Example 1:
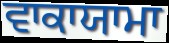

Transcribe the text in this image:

ਵਾਕਾਯਾਮਾ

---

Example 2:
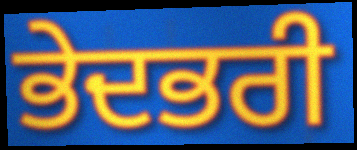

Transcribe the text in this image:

ਭੇਦਭਰੀ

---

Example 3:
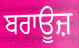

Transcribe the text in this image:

ਬਰਾਊਜ਼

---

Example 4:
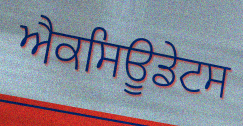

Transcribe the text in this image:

ਐਕਸਿਊਡੇਟਸ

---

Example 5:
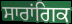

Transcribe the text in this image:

ਸਾਰਾਂਗਿਕ